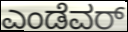
ಎಂಡೆವರ್